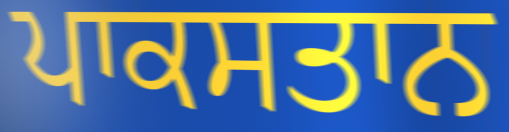
ਪਾਕਸਤਾਨ